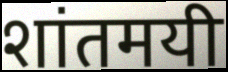
शांतमयी